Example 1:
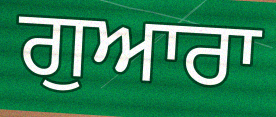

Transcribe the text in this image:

ਗੁਆਰਾ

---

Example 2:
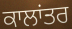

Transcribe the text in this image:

ਕਾਲਾਂਤਰ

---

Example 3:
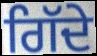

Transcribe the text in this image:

ਗਿੱਦੇ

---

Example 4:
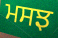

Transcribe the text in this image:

ਮਸਝ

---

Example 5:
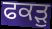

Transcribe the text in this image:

ਫਕੜੁ